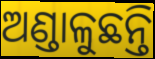
ଅଣ୍ଡାଳୁଛନ୍ତି